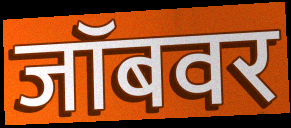
जॉबवर